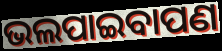
ଭଲପାଇବାପଣ